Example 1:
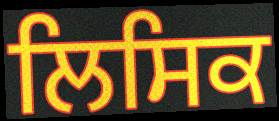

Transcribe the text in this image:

ਲਿਸਿਕ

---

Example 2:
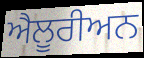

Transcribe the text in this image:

ਐਲੂਰੀਅਨ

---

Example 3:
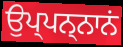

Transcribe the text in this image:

ਉਪ੍ਪਨ੍ਨਾਨਂ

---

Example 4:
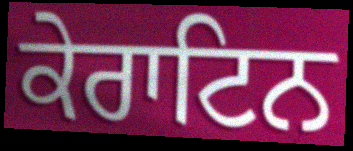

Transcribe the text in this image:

ਕੇਰਾਟਿਨ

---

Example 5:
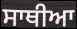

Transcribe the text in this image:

ਸਾਥੀਆ